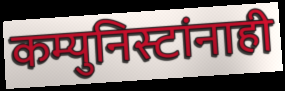
कम्युनिस्टांनाही